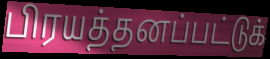
பிரயத்தனப்பட்டுக்